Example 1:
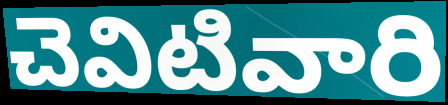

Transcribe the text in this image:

చెవిటివారి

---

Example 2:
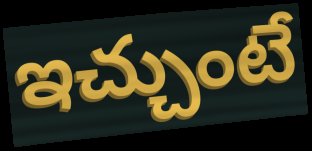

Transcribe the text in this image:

ఇచ్చుంటే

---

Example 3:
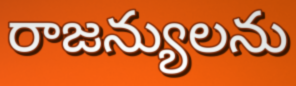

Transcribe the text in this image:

రాజన్యులను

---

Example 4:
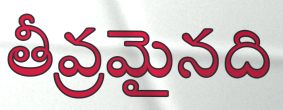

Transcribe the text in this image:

తీవ్రమైనది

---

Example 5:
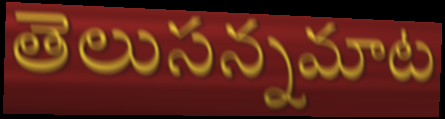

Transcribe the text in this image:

తెలుసన్నమాట